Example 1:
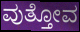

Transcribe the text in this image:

ವುತ್ತೋವ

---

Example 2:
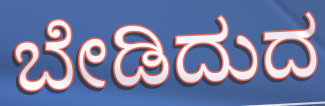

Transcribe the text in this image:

ಬೇಡಿದುದ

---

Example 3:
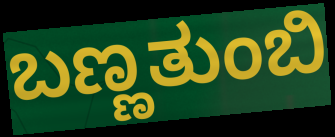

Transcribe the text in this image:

ಬಣ್ಣತುಂಬಿ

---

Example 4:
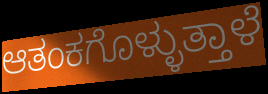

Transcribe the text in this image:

ಆತಂಕಗೊಳ್ಳುತ್ತಾಳೆ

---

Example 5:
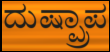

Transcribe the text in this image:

ದುಷ್ಪ್ರಾಪ